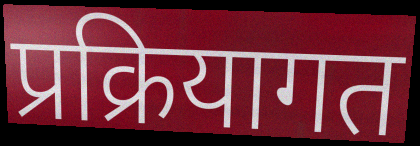
प्रक्रियागत